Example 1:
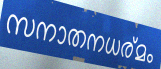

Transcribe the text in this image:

സനാതനധര്മം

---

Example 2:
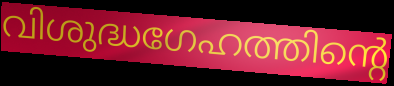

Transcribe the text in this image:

വിശുദ്ധഗേഹത്തിന്റെ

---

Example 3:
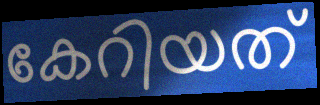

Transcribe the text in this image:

കേറിയത്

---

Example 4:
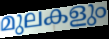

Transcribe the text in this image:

മുലകളും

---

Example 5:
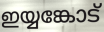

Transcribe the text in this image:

ഇയ്യങ്കോട്